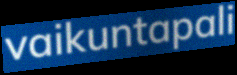
vaikuntapali